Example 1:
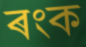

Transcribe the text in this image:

ৰংক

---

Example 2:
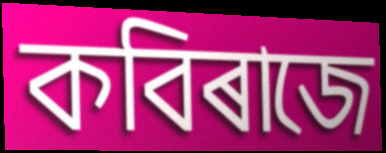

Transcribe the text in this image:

কবিৰাজে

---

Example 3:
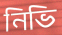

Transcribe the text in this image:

নিভি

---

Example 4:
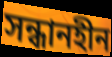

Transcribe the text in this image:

সন্ধানহীন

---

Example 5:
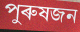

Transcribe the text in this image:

পুৰুষজন